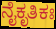
ನೈಕೃತಿಕಃ